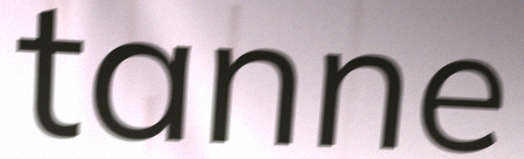
tanne